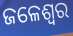
ଜଳେଶ୍ବର